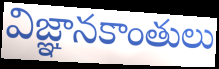
విజ్ఞానకాంతులు